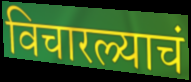
विचारल्याचं